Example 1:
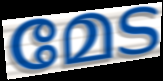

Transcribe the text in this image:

മേട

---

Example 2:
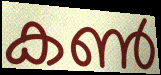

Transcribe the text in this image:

കൺ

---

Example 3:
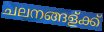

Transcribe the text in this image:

ചലനങ്ങള്ക്ക്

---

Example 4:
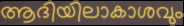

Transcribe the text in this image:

ആദിയിലാകാശവും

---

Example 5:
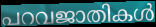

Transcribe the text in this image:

പറവജാതികൾ